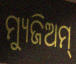
ମ୍ୟୁଜିଅମ୍